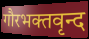
गौरभक्तवृन्द